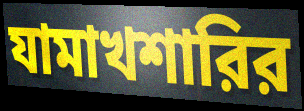
যামাখশারির